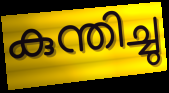
കുന്തിച്ചു